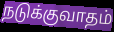
நடுக்குவாதம்